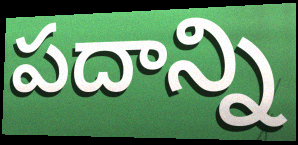
పదాన్ని